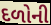
દળોની